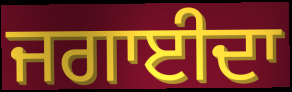
ਜਗਾਈਦਾ